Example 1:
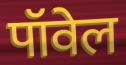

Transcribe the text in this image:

पॉवेल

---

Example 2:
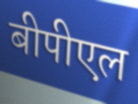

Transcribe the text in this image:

बीपीएल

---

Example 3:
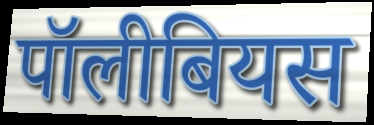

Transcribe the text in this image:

पॉलीबियस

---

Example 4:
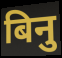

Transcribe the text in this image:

बिनु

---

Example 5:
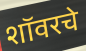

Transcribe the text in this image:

शॉवरचे